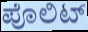
ಪೊಲಿಟ್